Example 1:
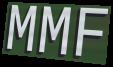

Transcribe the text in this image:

MMF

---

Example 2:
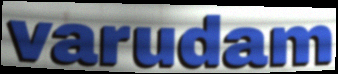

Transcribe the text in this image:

varudam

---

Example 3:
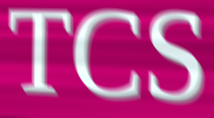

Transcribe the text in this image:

TCS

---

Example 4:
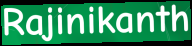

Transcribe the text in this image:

Rajinikanth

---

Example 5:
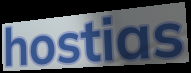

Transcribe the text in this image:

hostias